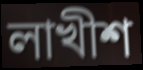
লাখীশ